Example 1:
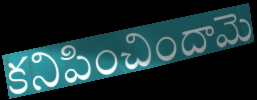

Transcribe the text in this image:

కనిపించిందామె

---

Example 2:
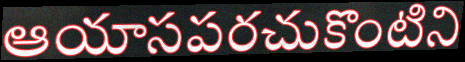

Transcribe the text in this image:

ఆయాసపరచుకొంటిని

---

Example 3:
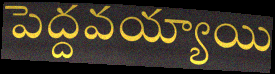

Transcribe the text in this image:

పెద్దవయ్యాయి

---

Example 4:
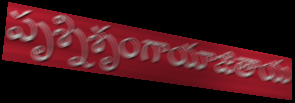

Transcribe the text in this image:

పృశ్నిశృంగాయాజితాయ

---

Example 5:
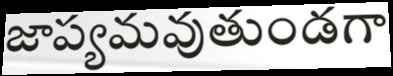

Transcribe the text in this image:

జాప్యమవుతుండగా